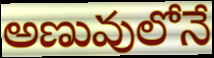
అణువులోనే